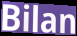
Bilan